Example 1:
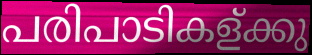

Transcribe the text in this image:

പരിപാടികള്ക്കു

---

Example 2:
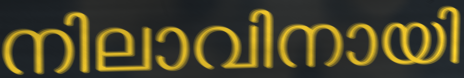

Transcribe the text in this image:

നിലാവിനായി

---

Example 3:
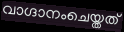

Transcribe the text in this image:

വാഗ്ദാനംചെയ്തത്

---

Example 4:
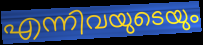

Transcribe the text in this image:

എന്നിവയുടെയും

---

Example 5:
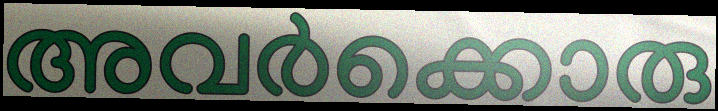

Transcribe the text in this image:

അവർക്കൊരു